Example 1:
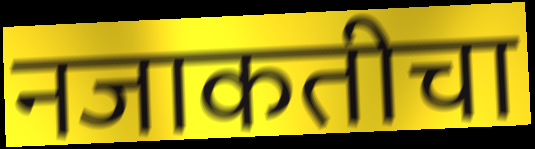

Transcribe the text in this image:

नजाकतीचा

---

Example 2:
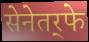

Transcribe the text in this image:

सेनेतर्फे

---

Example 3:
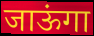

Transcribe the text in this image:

जाऊंगा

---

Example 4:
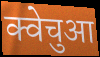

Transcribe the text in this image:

क्वेचुआ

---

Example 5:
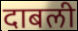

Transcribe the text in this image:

दाबली